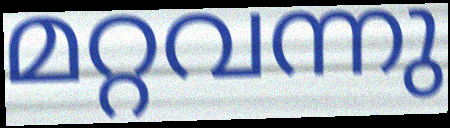
മറ്റവന്നു